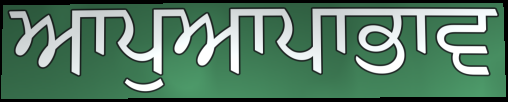
ਆਪੁਆਪਾਭਾਵ